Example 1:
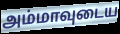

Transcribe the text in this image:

அம்மாவுடைய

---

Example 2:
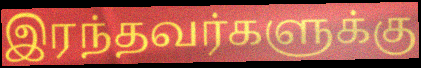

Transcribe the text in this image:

இரந்தவர்களுக்கு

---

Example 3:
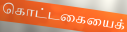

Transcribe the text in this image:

கொட்டகையைக்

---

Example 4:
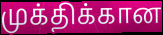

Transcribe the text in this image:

முக்திக்கான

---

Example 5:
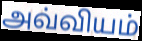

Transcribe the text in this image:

அவ்வியம்